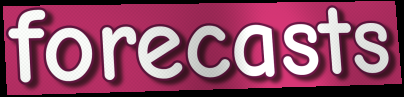
forecasts